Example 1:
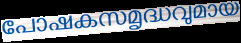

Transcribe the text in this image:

പോഷകസമൃദ്ധവുമായ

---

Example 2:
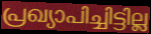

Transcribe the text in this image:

പ്രഖ്യാപിച്ചിട്ടില്ല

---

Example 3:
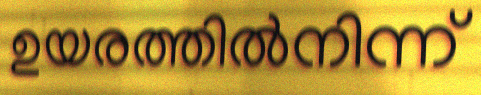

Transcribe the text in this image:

ഉയരത്തിൽനിന്ന്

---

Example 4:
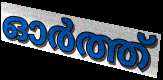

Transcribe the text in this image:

ഓർത്ത്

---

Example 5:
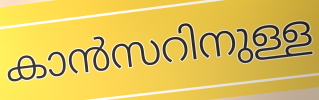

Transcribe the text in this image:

കാൻസറിനുള്ള